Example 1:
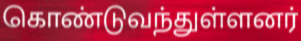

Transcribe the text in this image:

கொண்டுவந்துள்ளனர்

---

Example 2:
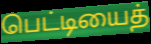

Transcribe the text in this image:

பெட்டியைத்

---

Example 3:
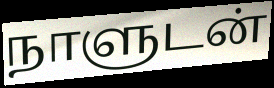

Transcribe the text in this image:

நாளுடன்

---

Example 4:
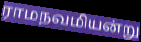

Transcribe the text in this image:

ராமநவமியன்று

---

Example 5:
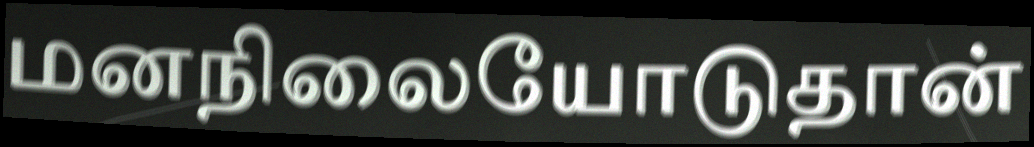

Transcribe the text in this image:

மனநிலையோடுதான்